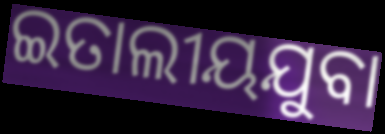
ଇତାଲୀୟଯୁବା